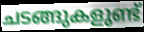
ചടങ്ങുകളുണ്ട്